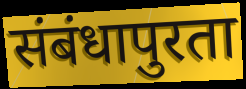
संबंधापुरता